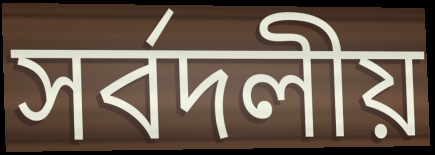
সর্বদলীয়